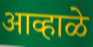
आव्हाळे